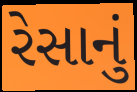
રેસાનું